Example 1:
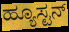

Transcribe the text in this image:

ಹ್ಯೂಸ್ಟನ್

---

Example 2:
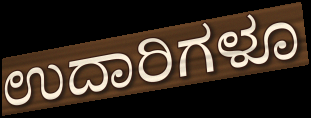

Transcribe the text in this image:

ಉದಾರಿಗಳೂ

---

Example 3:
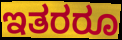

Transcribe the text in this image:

ಇತರರೂ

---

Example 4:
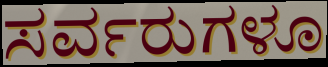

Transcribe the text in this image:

ಸರ್ವರುಗಳೂ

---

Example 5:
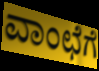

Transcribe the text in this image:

ವಾಂಛೆಗೆ